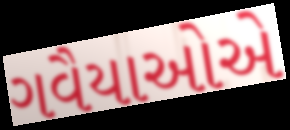
ગવૈયાઓએ